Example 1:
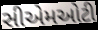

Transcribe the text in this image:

સીએમઓટી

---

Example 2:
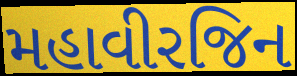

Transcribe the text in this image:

મહાવીરજિન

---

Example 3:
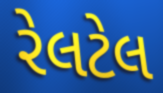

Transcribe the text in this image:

રેલટેલ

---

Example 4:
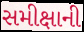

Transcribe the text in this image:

સમીક્ષાની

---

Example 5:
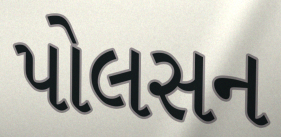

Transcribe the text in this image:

પોલસન